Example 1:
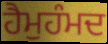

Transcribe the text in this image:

ਹੈਮੁਹੰਮਦ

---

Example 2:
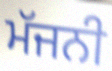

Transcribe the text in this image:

ਮੱਜਨੀ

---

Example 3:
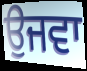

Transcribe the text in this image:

ਉਜਵਾ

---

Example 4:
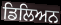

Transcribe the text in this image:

ਡਿਲਿਅਨ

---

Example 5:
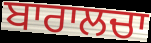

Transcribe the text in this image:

ਬਾਰਾਲਚਾ